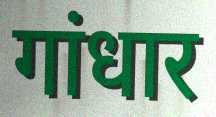
गांधार